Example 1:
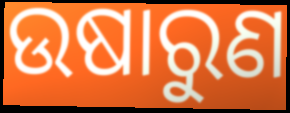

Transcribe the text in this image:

ଉଷାରୁଣ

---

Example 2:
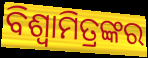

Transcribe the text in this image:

ବିଶ୍ୱାମିତ୍ରଙ୍କର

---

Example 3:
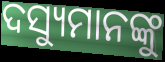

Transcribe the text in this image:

ଦସ୍ୟୁମାନଙ୍କୁ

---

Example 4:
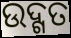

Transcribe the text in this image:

ଉଦ୍ଗତ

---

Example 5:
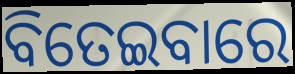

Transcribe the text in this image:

ବିତେଇବାରେ